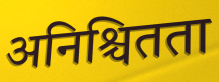
अनिश्चितता